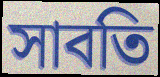
সাবতি